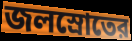
জলস্রোতের